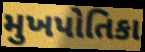
મુખપોતિકા